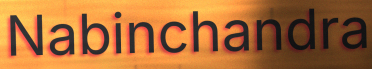
Nabinchandra